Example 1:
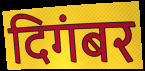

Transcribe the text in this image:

दिगंबर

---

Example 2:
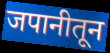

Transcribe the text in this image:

जपानीतून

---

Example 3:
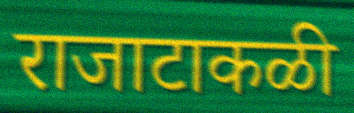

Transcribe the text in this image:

राजाटाकळी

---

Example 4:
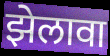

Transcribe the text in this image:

झेलावा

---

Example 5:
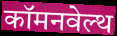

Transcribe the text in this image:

कॉमनवेल्थ